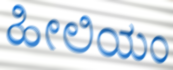
ಹೀಲಿಯಂ